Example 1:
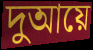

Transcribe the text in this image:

দুআয়ে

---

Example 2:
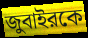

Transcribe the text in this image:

জুবাইরকে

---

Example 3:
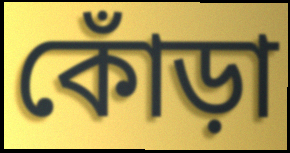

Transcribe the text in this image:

কোঁড়া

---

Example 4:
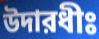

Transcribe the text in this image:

উদারধীঃ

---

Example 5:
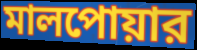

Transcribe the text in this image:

মালপোয়ার